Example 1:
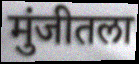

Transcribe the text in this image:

मुंजीतला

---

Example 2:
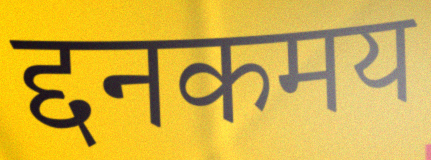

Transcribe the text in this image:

द्दनकमय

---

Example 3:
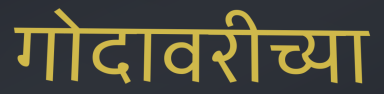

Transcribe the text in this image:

गोदावरीच्या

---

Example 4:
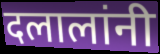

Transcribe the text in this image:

दलालांनी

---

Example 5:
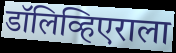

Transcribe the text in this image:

डॉलिव्हिएराला